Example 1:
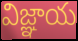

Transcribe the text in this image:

విజ్ఞాయ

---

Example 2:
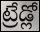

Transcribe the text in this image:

ట్రేడ్లో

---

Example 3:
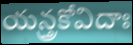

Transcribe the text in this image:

యన్త్రకోవిదాః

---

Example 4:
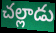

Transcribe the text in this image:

చల్లాడు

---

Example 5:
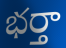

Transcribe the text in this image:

భర్తా